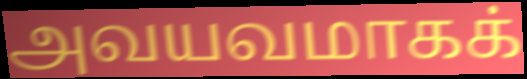
அவயவமாகக்